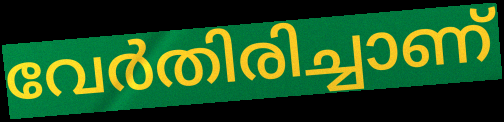
വേർതിരിച്ചാണ്